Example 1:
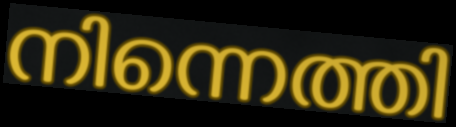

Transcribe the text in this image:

നിന്നെത്തി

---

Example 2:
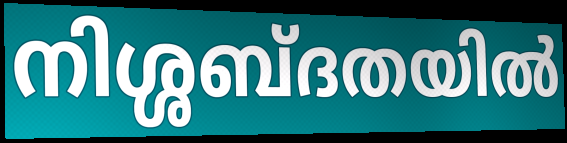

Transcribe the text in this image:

നിശ്ശബ്ദതയിൽ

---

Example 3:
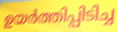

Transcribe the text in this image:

ഉയർത്തിപ്പിടിച്ച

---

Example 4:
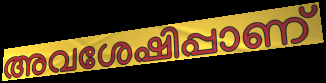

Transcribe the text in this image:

അവശേഷിപ്പാണ്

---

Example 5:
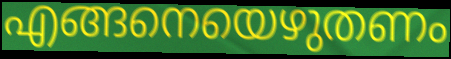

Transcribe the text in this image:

എങ്ങനെയെഴുതണം